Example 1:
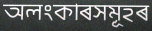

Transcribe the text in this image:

অলংকাৰসমূহৰ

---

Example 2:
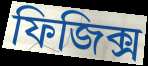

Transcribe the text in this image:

ফিজিক্স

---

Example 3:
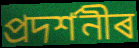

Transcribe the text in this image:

প্ৰদৰ্শনীৰ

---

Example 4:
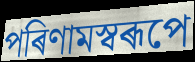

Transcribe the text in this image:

পৰিণামস্বৰূপে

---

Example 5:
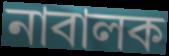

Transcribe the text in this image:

নাবালক